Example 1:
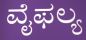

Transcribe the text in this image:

ವೈಫಲ್ಯ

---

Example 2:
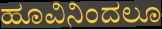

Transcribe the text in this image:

ಹೂವಿನಿಂದಲೂ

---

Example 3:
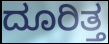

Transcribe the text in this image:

ದೂರಿತ್ತ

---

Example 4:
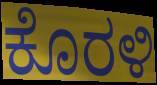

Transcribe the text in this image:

ಕೊರಳಿ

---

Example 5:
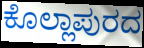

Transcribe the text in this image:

ಕೊಲ್ಲಾಪುರದ